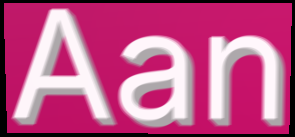
Aan